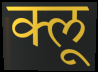
क्लू